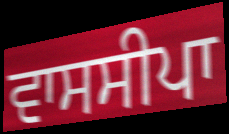
ਵਾਸਸੀਪਾ